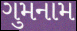
ગુમનામ